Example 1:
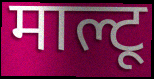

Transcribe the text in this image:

माल्टू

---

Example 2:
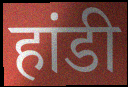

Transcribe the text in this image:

हांडी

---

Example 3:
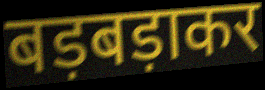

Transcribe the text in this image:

बड़बड़ाकर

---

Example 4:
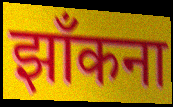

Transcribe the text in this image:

झाँकना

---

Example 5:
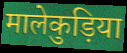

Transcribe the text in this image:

मालेकुड़िया